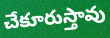
చేకూరుస్తావు